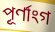
পূৰ্ণাংগ